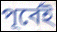
পূর্বেই